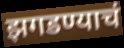
झगडण्याचं